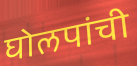
घोलपांची